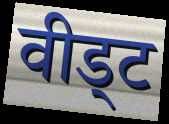
वीड्ट